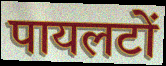
पायलटों